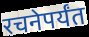
रचनेपर्यंत